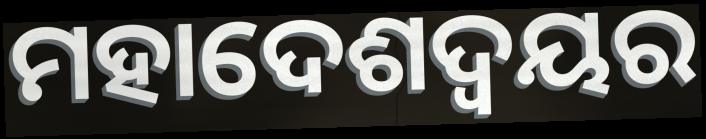
ମହାଦେଶଦ୍ଵୟର